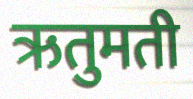
ऋतुमती